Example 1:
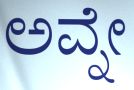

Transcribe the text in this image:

ಅವ್ನೇ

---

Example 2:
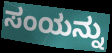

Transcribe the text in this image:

ಸಂಯನ್ನು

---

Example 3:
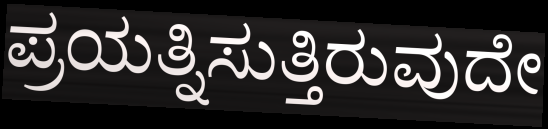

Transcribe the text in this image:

ಪ್ರಯತ್ನಿಸುತ್ತಿರುವುದೇ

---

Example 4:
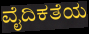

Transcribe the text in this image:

ವೈದಿಕತೆಯ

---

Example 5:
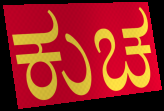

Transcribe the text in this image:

ಕುಚ